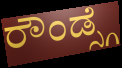
ರೌಂಡ್ಸ್ಗೆ